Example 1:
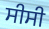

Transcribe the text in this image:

ਸੀਸੀ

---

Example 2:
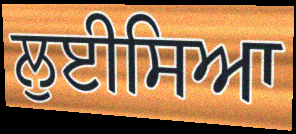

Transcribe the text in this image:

ਲੁਈਸਿਆ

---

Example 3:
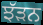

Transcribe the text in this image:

ਝੱੜਨ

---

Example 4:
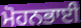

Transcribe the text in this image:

ਮੋਹਨਭਾਈ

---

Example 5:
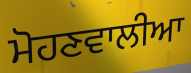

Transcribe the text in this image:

ਮੋਹਣਵਾਲੀਆ